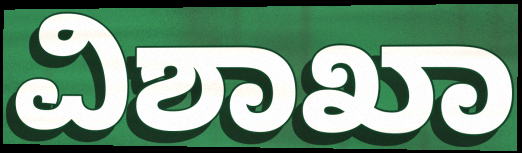
ವಿಶಾಖಾ